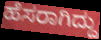
ಹೆಸರಾಗಿದ್ದು